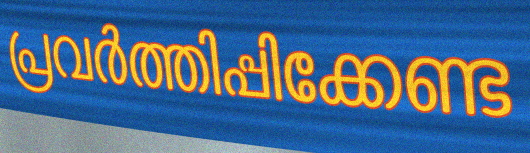
പ്രവർത്തിപ്പിക്കേണ്ട